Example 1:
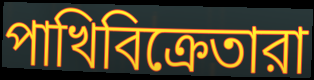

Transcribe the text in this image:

পাখিবিক্রেতারা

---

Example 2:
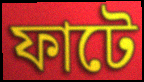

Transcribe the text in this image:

ফাটে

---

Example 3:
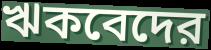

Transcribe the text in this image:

ঋকবেদের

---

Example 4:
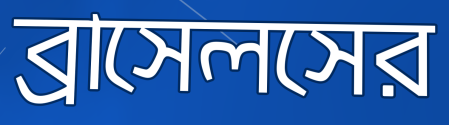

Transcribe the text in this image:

ব্রাসেলসের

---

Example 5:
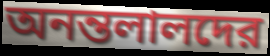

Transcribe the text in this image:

অনন্তলালদের